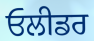
ਓਲੀਡਰ